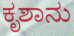
ಕೃಶಾನು